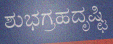
ಶುಭಗ್ರಹದೃಷ್ಟಿ